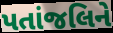
પતાંજલિને